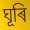
ঘূৰি